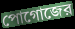
পোগোজের